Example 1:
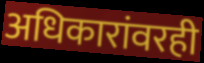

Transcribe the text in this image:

अधिकारांवरही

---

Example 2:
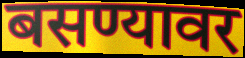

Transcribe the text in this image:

बसण्यावर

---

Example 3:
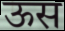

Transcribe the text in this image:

ऊस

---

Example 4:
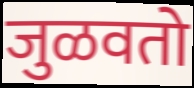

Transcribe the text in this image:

जुळवतो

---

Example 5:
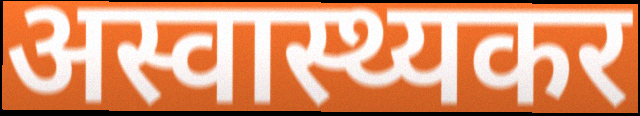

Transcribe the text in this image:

अस्वास्थ्यकर